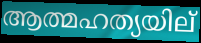
ആത്മഹത്യയില്